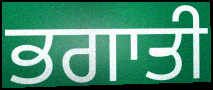
ਭਗਾਤੀ